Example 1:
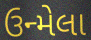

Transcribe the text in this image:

ઉન્મેલા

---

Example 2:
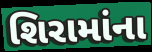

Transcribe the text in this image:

શિરામાંના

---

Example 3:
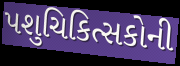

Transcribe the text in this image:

પશુચિકિત્સકોની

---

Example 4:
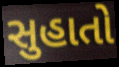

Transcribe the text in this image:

સુહાતો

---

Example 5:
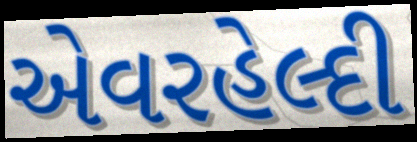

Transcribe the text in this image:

એવરહેલ્દી